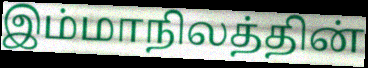
இம்மாநிலத்தின்